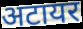
अटायर